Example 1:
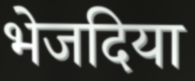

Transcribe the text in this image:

भेजदिया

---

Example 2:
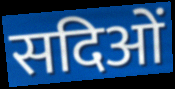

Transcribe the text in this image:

सदिओं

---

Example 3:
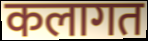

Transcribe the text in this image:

कलागत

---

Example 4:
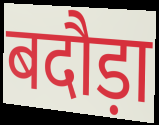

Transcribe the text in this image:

बदौड़ा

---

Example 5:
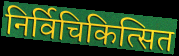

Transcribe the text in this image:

निर्विचिकित्सित